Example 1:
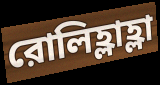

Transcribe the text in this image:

রোলিহ্লাহ্লা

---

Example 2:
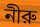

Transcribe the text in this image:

নীরু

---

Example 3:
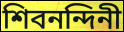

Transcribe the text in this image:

শিবনন্দিনী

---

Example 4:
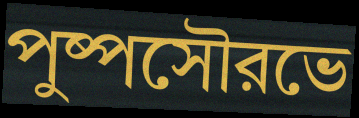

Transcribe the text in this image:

পুষ্পসৌরভে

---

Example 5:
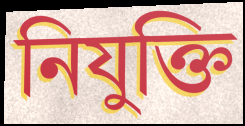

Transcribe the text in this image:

নিযুক্তি